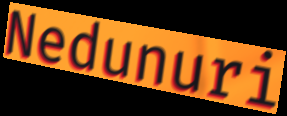
Nedunuri